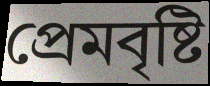
প্রেমবৃষ্টি